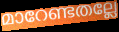
മാറേണ്ടതല്ലേ